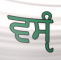
ਵਸੵੰ